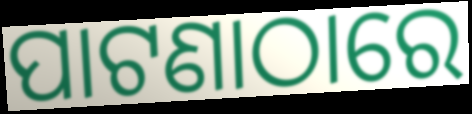
ପାଟଣାଠାରେ